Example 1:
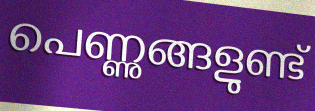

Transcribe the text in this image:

പെണ്ണുങ്ങളുണ്ട്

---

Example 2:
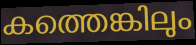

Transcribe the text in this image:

കത്തെങ്കിലും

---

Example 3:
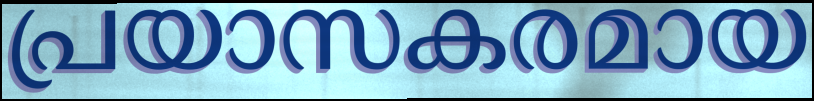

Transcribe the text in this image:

പ്രയാസകരമായ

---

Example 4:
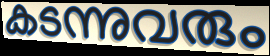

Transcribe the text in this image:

കടന്നുവരും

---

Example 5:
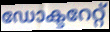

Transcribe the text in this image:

ഡോക്ടറേറ്റ്